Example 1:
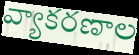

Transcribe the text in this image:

వ్యాకరణాల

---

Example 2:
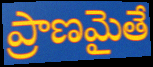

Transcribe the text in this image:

ప్రాణమైతే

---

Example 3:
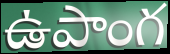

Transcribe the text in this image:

ఉపాంగ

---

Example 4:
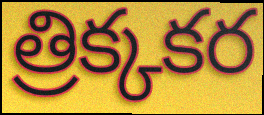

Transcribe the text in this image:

త్రిక్కకర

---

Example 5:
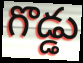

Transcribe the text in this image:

గొడ్డు